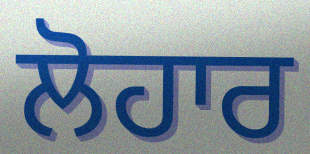
ਲੋਹਾਰ